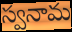
స్వనామ